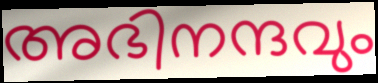
അഭിനന്ദവും